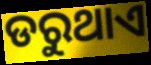
ଡରୁଥାଏ